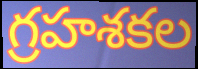
గ్రహశకల